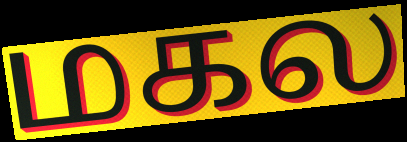
மகல